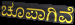
ಚೂಪಾಗಿವೆ